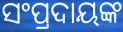
ସଂପ୍ରଦାୟଙ୍କ